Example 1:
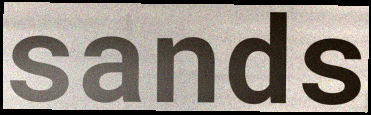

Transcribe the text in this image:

sands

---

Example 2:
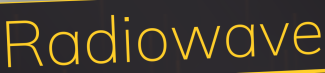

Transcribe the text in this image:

Radiowave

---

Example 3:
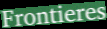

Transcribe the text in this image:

Frontieres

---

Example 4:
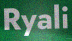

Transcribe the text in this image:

Ryali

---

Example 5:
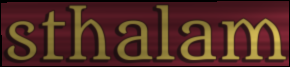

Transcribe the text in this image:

sthalam